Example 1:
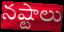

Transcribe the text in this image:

నష్టాలు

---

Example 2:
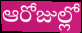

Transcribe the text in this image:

ఆరోజుల్లో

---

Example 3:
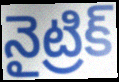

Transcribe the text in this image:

నైట్రిక్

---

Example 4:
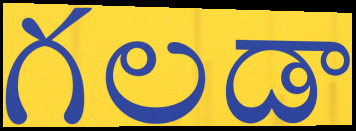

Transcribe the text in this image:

గలడా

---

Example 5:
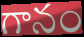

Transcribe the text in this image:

గానం